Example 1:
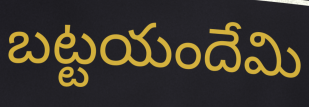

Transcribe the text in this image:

బట్టయందేమి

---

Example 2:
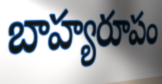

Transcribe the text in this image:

బాహ్యరూపం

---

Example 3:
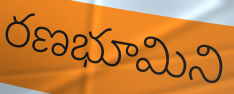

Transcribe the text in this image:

రణభూమిని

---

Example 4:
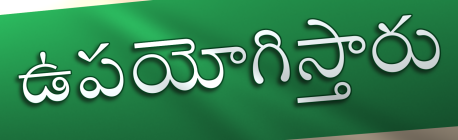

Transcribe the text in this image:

ఉపయోగిస్తారు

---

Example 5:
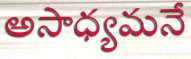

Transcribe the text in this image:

అసాధ్యమనే